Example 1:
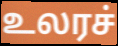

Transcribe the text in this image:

உலரச்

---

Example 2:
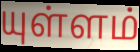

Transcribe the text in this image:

யுள்ளம்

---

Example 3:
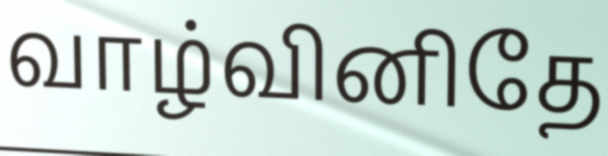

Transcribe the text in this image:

வாழ்வினிதே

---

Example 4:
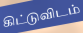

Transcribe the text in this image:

கிட்டுவிடம்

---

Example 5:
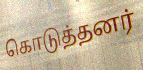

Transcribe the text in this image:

கொடுத்தனர்